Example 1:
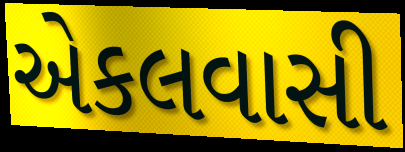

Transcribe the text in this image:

એકલવાસી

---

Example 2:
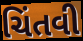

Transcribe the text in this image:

ચિંતવી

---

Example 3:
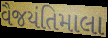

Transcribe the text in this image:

વૈજયંતિમાલા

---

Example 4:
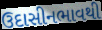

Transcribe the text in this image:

ઉદાસીનભાવથી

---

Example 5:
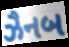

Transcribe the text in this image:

ઝૈનબ